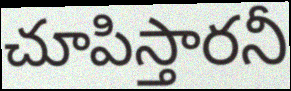
చూపిస్తారనీ